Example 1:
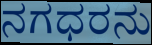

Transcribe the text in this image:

ನಗಧರನು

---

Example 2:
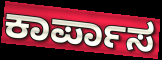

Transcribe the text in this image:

ಕಾರ್ಪಾಸ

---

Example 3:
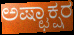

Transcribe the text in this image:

ಅಷ್ಟಾಕ್ಷರ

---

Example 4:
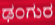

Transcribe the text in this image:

ಢಂಗುರ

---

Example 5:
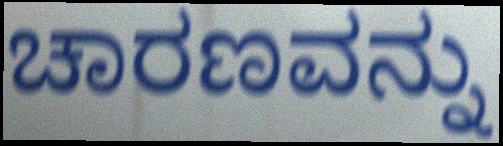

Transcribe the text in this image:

ಚಾರಣವನ್ನು